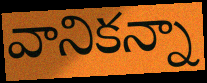
వానికన్నా